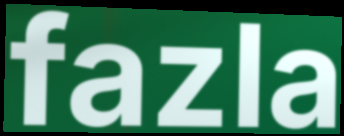
fazla